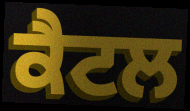
ਕੈਟਲ